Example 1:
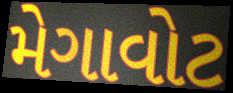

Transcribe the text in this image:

મેગાવોટ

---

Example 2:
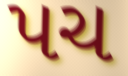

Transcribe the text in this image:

પચ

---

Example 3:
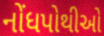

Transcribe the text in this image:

નોંધપોથીઓ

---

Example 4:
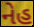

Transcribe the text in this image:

નેહ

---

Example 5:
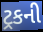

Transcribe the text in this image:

ટ્રકની